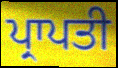
ਪ੍ਰਾਪਤੀ